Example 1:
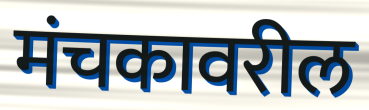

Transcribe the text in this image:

मंचकावरील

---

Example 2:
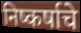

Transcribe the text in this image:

निष्कर्षाचे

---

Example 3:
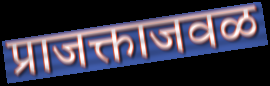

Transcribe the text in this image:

प्राजक्ताजवळ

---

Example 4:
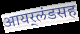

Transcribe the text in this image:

आयर्लंडसह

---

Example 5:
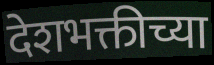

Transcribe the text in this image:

देशभक्तीच्या